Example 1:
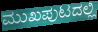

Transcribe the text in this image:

ಮುಖಪುಟದಲ್ಲಿ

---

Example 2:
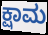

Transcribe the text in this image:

ಕ್ಷಾಮ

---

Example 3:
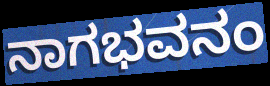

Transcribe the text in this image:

ನಾಗಭವನಂ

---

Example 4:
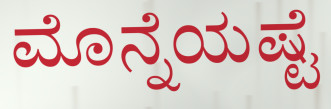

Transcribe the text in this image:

ಮೊನ್ನೆಯಷ್ಟೆ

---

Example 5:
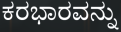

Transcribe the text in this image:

ಕರಭಾರವನ್ನು